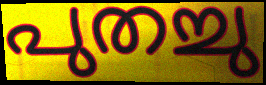
പുതച്ചു